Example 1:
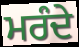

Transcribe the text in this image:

ਮਰੰਦੇ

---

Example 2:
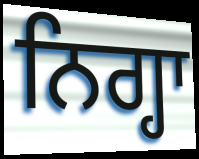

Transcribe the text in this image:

ਨਿਗ੍ਹਾ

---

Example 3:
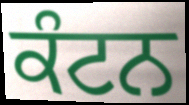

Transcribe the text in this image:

ਕੰਟਨ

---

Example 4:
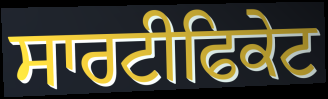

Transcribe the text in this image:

ਸਾਰਟੀਫਿਕੇਟ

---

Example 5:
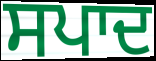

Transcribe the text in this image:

ਸਪਾਦ